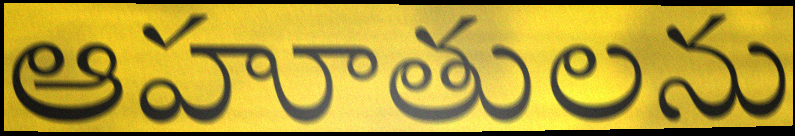
ఆహూతులను